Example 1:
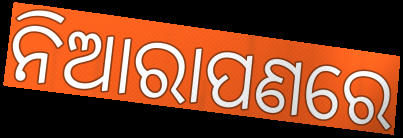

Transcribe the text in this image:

ନିଆରାପଣରେ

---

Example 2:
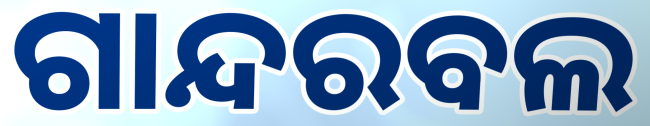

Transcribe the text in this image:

ଗାନ୍ଦରବଲ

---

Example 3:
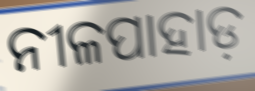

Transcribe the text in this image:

ନୀଳପାହାଡ଼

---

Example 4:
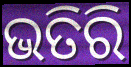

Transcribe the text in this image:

ଭତିରି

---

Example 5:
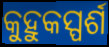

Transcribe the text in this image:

କୁହୁକସ୍ପର୍ଶ